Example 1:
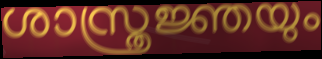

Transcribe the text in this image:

ശാസ്ത്രജ്ഞയും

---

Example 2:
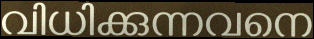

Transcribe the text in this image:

വിധിക്കുന്നവനെ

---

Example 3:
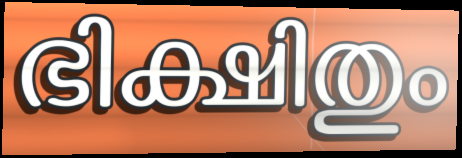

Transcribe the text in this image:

ഭിക്ഷിതും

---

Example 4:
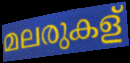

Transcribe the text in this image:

മലരുകള്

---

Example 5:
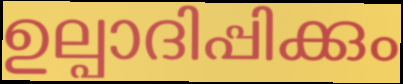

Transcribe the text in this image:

ഉല്പാദിപ്പിക്കും